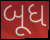
બૂધ